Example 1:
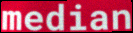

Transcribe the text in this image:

median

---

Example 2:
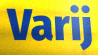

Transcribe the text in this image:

Varij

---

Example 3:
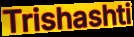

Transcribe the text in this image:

Trishashti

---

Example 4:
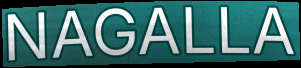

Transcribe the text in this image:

NAGALLA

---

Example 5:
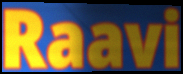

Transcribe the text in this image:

Raavi